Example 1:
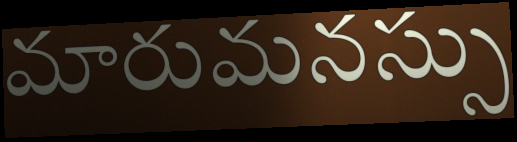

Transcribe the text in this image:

మారుమనస్సు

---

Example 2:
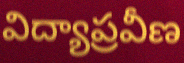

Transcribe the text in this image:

విద్యాప్రవీణ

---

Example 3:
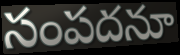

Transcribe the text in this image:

సంపదనూ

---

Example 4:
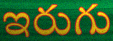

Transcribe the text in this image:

ఇరుగు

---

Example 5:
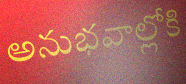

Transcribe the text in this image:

అనుభవాల్లోకి